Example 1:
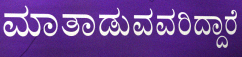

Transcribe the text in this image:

ಮಾತಾಡುವವರಿದ್ದಾರೆ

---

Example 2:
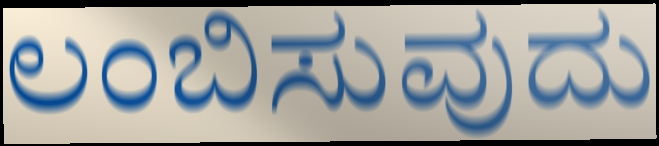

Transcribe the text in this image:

ಲಂಬಿಸುವುದು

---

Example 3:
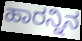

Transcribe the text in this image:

ಹಾರನ್ನಿನ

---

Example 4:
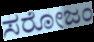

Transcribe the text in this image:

ಸರೋಜಂ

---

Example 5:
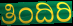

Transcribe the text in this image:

ತಿಂದಿರಿ